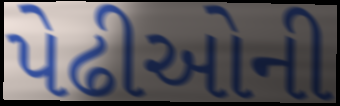
પેઢીઓની